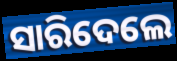
ସାରିଦେଲେ